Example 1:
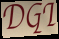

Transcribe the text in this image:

DGI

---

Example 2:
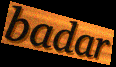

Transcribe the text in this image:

badar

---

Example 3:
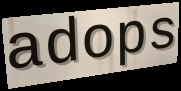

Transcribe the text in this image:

adops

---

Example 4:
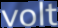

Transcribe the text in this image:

volt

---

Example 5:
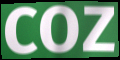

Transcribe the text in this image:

coz